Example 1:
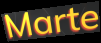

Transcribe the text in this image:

Marte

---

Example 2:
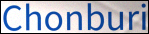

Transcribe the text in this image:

Chonburi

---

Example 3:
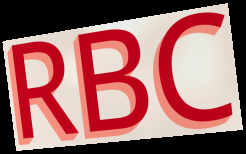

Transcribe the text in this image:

RBC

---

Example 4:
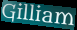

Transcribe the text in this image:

Gilliam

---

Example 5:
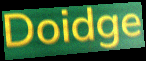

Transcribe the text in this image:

Doidge